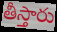
తీస్తారు